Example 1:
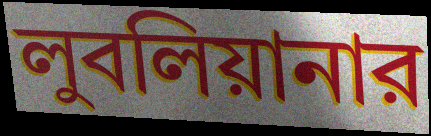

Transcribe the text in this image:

লুবলিয়ানার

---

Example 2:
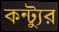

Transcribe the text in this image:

কন্ট্যুর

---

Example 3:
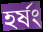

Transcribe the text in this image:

হর্ষং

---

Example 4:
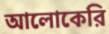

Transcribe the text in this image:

আলোকেরি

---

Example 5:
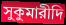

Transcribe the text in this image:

সুকুমারীদি